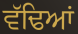
ਵੱਢਿਆਂ